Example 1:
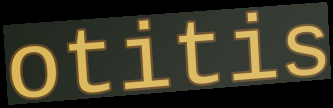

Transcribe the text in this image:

otitis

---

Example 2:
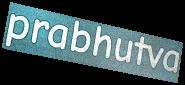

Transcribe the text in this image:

prabhutva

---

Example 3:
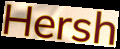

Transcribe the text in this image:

Hersh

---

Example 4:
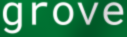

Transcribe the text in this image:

grove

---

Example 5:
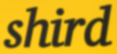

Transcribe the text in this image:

shird